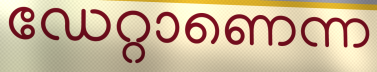
ഡേറ്റാണെന്ന